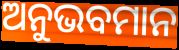
ଅନୁଭବମାନ